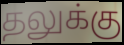
தலுக்கு